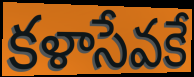
కళాసేవకే